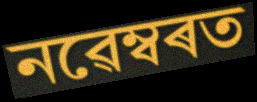
নৱেম্বৰত